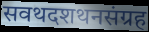
सवथदशथनसंग्रह